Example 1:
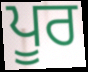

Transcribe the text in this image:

ਪੂਰ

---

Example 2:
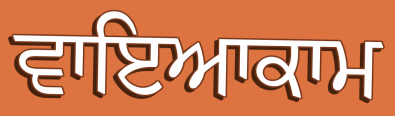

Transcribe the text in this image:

ਵਾਇਆਕਾਮ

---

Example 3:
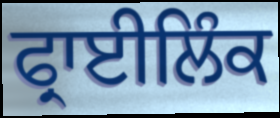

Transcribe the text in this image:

ਫ੍ਰਾਈਲਿੰਕ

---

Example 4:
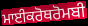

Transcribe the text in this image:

ਮਾਈਕਰੋਥਰੋਮਬੀ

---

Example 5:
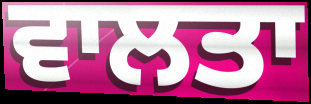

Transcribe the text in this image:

ਵਾਲਤਾ